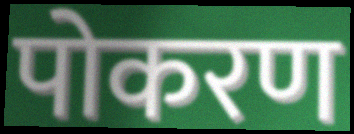
पोकरण